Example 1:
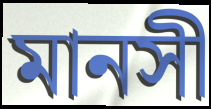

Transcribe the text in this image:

মানসী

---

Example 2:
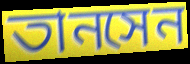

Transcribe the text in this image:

তানসেন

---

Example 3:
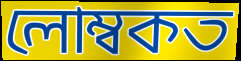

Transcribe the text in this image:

লোম্বকত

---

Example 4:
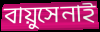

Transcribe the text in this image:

বায়ুসেনাই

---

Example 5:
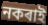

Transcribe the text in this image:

নকৰাই